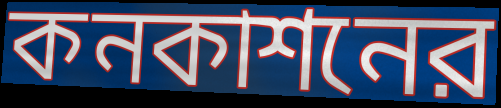
কনকাশনের